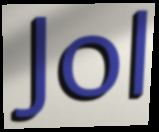
Jol